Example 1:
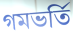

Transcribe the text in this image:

গমভর্তি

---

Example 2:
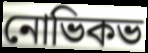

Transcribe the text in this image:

নোভিকভ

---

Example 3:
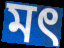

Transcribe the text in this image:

মৎ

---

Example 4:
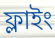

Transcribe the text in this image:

ফ্লাইং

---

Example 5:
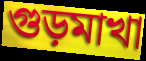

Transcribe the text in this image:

গুড়মাখা